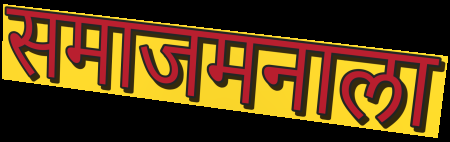
समाजमनाला